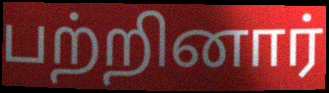
பற்றினார்